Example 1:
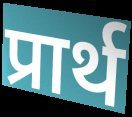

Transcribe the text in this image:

प्रार्थ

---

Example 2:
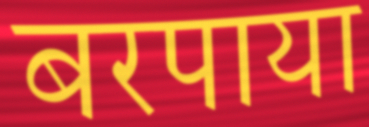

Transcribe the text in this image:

बरपाया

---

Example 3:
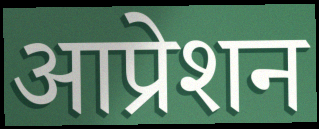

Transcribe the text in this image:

आप्रेशन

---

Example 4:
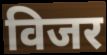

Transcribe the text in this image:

विजर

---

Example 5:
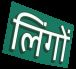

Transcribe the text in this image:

लिंगों